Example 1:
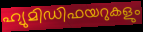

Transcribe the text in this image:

ഹ്യുമിഡിഫയറുകളും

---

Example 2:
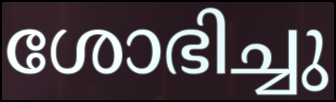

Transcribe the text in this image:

ശോഭിച്ചു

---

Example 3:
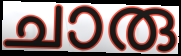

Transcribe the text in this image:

ചാരു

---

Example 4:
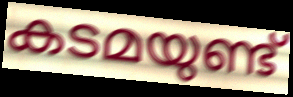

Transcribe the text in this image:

കടമയുണ്ട്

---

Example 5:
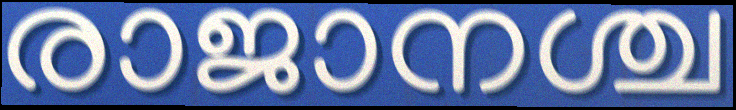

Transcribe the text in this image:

രാജാനശ്ച